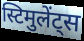
स्टिमुलेंट्स